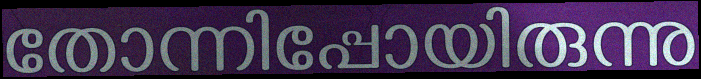
തോന്നിപ്പോയിരുന്നു